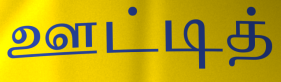
ஊட்டித்